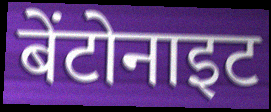
बेंटोनाइट